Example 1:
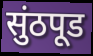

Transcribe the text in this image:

सुंठपूड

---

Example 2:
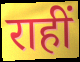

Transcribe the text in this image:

राहीं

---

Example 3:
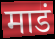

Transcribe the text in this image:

माडं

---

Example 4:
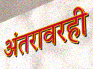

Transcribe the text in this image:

अंतरावरही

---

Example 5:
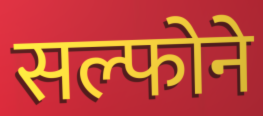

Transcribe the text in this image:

सल्फोने